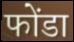
फोंडा